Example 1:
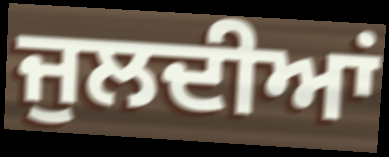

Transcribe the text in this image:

ਜੁਲਦੀਆਂ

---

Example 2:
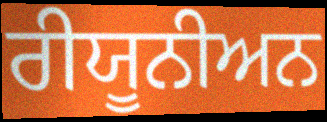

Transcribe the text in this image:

ਰੀਯੂਨੀਅਨ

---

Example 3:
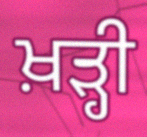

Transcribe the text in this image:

ਖ਼ੜ੍ਹੀ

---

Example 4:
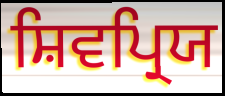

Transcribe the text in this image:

ਸ਼ਿਵਪ੍ਰਿਯ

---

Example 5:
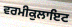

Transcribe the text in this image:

ਵਰਮੀਕੁਲਾਇਟ